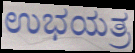
ಉಭಯತ್ರ